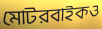
মোটরবাইকও